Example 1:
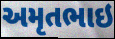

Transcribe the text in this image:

અમૃતભાઇ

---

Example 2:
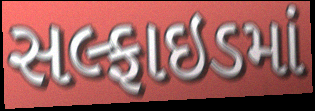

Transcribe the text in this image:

સલ્ફાઇડમાં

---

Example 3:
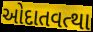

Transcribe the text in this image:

ઓદાતવત્થા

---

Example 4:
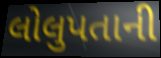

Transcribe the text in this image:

લોલુપતાની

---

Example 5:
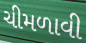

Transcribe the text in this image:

ચીમળાવી